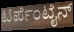
ಟರ್ಪೆಂಟೈನ್